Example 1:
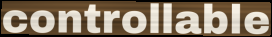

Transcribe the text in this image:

controllable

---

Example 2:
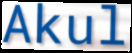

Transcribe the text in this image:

Akul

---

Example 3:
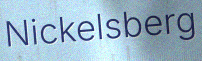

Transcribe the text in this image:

Nickelsberg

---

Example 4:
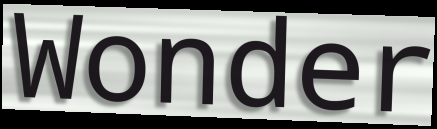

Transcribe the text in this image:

Wonder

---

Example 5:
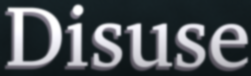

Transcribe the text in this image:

Disuse